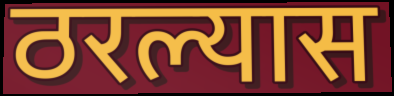
ठरल्यास